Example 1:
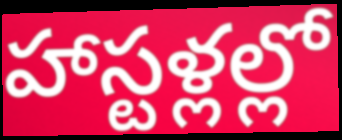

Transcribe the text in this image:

హాస్టళ్లల్లో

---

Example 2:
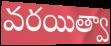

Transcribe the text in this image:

వరయిత్వా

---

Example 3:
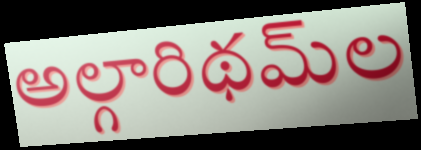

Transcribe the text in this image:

అల్గారిథమ్‌ల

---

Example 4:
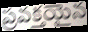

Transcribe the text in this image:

ప్రవక్తయైన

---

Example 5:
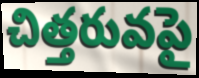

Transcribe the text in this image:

చిత్తరువపై